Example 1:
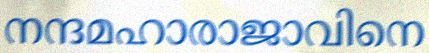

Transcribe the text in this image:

നന്ദമഹാരാജാവിനെ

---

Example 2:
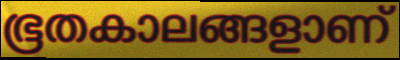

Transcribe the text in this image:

ഭൂതകാലങ്ങളാണ്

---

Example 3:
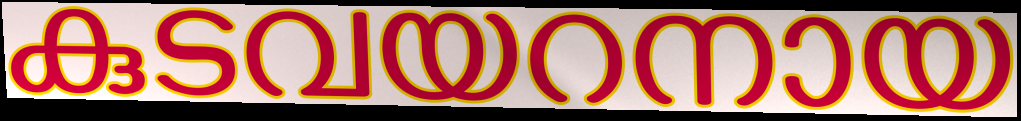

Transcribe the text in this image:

കുടവയറനായ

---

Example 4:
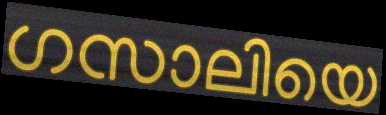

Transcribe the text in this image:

ഗസാലിയെ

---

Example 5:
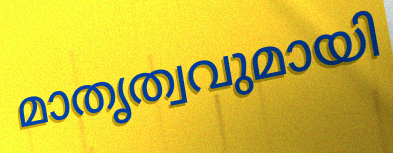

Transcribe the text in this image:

മാതൃത്വവുമായി